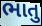
ભાતુ